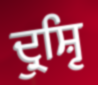
ਦ੍ਰੁਸ਼੍ਟਿ